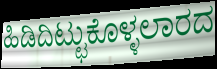
ಹಿಡಿದಿಟ್ಟುಕೊಳ್ಳಲಾರದ